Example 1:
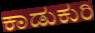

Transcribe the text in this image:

ಕಾಡುಕುರಿ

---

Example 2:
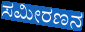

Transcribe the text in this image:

ಸಮೀರಣನ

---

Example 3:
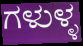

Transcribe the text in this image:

ಗಳುಳ್ಳ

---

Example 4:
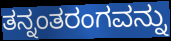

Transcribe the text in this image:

ತನ್ನಂತರಂಗವನ್ನು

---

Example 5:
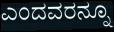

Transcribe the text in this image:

ಎಂದವರನ್ನೂ